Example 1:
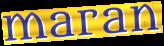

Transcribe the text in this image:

maran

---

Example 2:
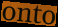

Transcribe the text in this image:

onto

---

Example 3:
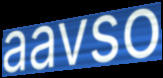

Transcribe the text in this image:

aavso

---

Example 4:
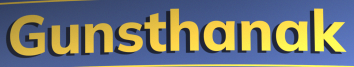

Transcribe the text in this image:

Gunsthanak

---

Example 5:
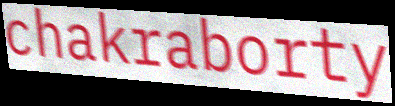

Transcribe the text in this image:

chakraborty